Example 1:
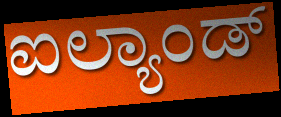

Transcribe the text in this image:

ಐಲ್ಯಾಂಡ್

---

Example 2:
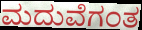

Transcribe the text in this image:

ಮದುವೆಗಂತ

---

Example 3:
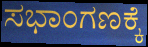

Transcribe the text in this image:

ಸಭಾಂಗಣಕ್ಕೆ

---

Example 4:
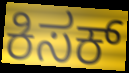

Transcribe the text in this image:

ಕಿಸಕ್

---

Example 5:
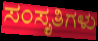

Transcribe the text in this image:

ಸಂಸ್ಕೃತಿಗಳು